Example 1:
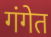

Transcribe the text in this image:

गंगेत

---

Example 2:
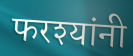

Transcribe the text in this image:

फरश्यांनी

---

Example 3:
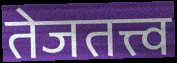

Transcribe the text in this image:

तेजतत्त्व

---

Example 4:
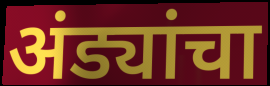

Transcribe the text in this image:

अंड्यांचा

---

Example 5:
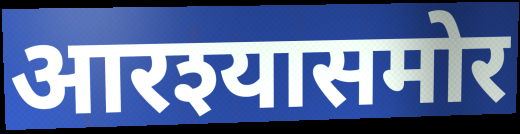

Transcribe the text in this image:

आरश्यासमोर